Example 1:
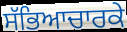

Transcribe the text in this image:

ਸੱਭਿਆਚਾਰਕੇ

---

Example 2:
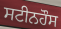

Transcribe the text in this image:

ਸਟੀਨਹੌਸ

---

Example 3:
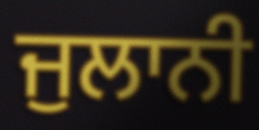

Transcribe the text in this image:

ਜੁਲਾਨੀ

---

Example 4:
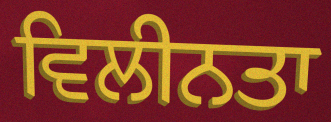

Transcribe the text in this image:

ਵਿਲੀਨਤਾ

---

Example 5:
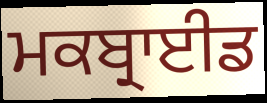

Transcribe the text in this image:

ਮਕਬ੍ਰਾਈਡ